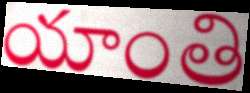
యాంతి